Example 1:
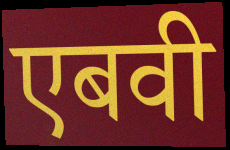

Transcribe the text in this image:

एबवी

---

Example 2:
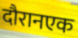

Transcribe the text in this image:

दौरानएक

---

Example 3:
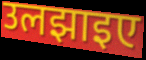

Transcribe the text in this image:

उलझाइए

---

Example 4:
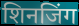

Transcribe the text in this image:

शिनजिंग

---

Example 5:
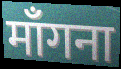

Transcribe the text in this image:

माँगना